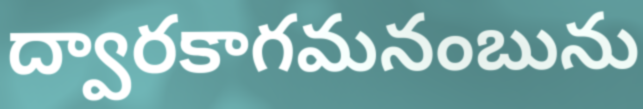
ద్వారకాగమనంబును